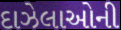
દાઝેલાઓની